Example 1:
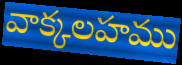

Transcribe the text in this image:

వాక్కలహము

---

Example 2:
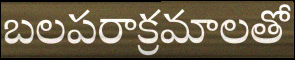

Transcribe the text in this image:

బలపరాక్రమాలతో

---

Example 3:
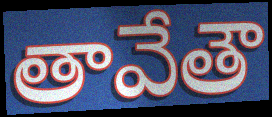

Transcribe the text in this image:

తావేతౌ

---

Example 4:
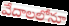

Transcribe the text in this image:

వేదాలలోనూ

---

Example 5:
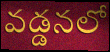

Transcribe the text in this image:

వడ్డనలో